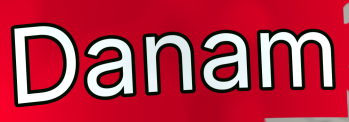
Danam